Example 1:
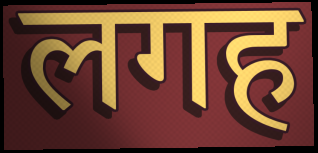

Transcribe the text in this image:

लगह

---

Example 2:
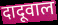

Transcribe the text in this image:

दादूवाल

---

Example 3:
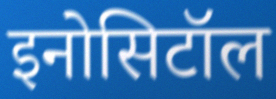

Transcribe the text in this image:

इनोसिटॉल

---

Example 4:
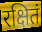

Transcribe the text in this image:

रक्षितं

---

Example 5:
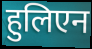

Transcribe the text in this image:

हुलिएन